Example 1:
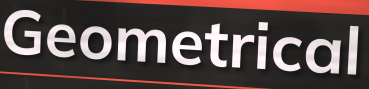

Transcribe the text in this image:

Geometrical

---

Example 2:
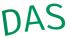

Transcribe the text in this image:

DAS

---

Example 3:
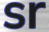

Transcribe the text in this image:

sr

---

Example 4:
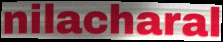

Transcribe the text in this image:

nilacharal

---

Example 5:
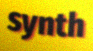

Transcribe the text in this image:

synth